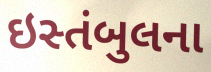
ઇસ્તંબુલના